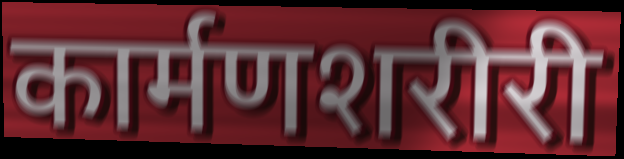
कार्मणशरीरी